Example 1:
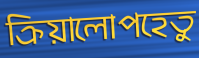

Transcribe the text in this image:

ক্রিয়ালোপহেতু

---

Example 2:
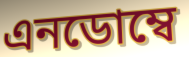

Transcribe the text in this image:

এনডোম্বে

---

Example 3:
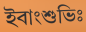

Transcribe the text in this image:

ইবাংশুভিঃ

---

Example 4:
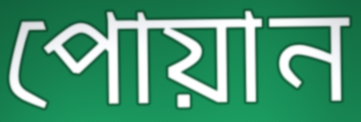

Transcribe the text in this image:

পোয়ান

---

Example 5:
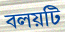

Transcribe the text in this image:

বলয়টি